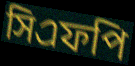
সিএফপি